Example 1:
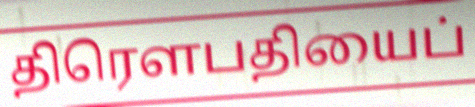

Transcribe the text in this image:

திரெளபதியைப்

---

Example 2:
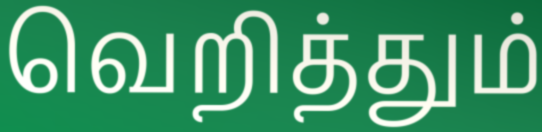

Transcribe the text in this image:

வெறித்தும்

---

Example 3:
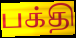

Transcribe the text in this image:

பக்தி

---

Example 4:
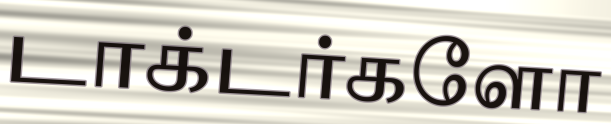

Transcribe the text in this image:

டாக்டர்களோ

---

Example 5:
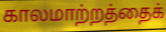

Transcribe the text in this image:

காலமாற்றத்தைக்